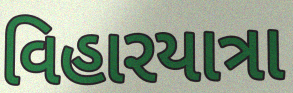
વિહારયાત્રા